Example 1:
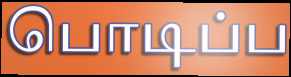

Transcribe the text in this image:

பொடிப்ப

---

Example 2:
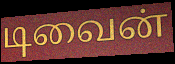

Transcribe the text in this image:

டிவைன்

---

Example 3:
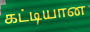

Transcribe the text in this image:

கட்டியான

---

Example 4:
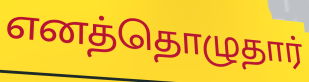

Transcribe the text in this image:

எனத்தொழுதார்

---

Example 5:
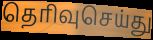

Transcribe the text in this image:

தெரிவுசெய்து